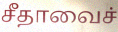
சீதாவைச்